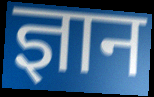
ज्ञान